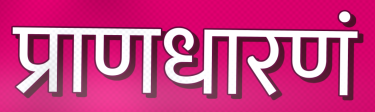
प्राणधारणं